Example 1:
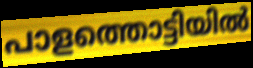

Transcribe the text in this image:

പാളത്തൊട്ടിയിൽ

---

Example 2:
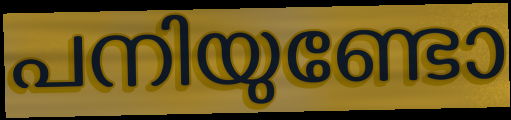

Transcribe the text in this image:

പനിയുണ്ടോ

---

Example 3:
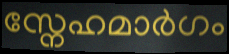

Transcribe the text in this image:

സ്നേഹമാർഗം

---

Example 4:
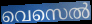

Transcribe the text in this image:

വെസെൽ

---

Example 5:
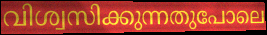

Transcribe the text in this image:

വിശ്വസിക്കുന്നതുപോലെ